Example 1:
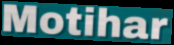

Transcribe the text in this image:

Motihar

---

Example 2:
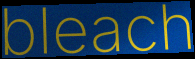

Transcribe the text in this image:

bleach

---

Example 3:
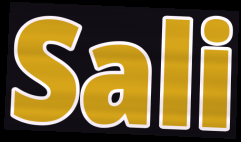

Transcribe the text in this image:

Sali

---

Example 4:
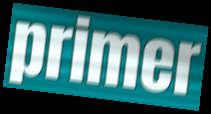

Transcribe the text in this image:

primer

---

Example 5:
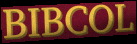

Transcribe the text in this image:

BIBCOL